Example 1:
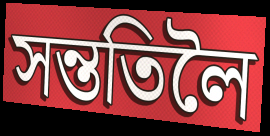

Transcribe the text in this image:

সন্ততিলৈ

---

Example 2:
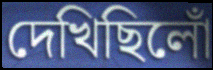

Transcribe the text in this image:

দেখিছিলোঁ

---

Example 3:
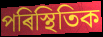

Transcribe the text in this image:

পৰিস্থিতিক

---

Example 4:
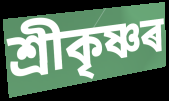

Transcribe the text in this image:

শ্ৰীকৃষ্ণৰ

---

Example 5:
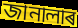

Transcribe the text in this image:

জানালাৰ